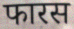
फारस